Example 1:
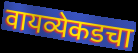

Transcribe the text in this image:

वायव्येकडचा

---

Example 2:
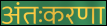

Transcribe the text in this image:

अंतःकरणा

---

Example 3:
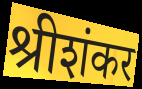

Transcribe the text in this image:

श्रीशंकर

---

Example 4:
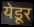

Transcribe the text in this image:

येडूर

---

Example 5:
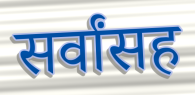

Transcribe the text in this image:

सर्वांसह